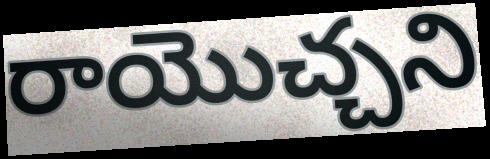
రాయొచ్చని